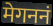
मेगननं